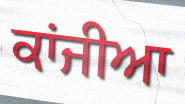
ਕਾਂਜੀਆ